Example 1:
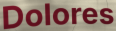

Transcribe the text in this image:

Dolores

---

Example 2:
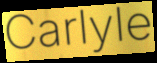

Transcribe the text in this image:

Carlyle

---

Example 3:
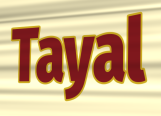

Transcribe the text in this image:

Tayal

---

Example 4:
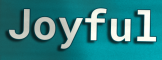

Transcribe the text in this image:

Joyful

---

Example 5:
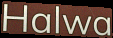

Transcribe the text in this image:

Halwa